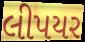
લીપયર